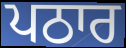
ਪਠਾਰ